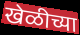
खेळीच्या